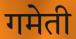
गमेती